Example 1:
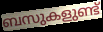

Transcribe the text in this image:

ബസുകളുണ്ട്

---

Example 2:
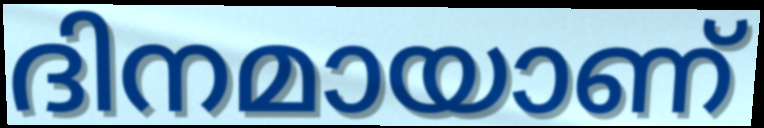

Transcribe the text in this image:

ദിനമായാണ്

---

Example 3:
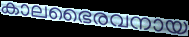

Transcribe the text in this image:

കാലഭൈരവനായ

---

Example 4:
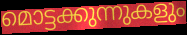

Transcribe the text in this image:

മൊട്ടക്കുന്നുകളും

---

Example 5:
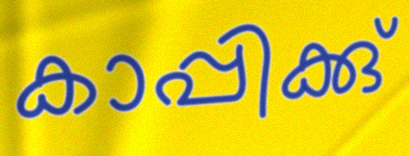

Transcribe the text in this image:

കാപ്പിക്കു്